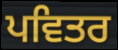
ਪਵਿਤਰ